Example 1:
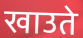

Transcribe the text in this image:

खाउते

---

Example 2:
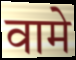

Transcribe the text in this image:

वामे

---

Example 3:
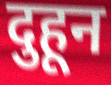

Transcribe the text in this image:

दुहून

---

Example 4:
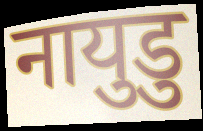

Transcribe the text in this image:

नायुडु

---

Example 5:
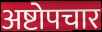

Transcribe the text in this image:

अष्टोपचार